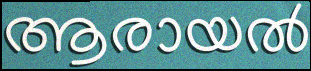
ആരായൽ